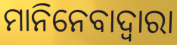
ମାନିନେବାଦ୍ୱାରା